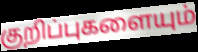
குறிப்புகளையும்